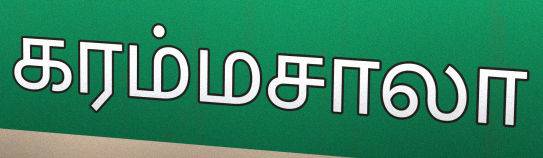
கரம்மசாலா